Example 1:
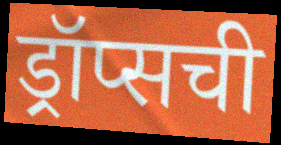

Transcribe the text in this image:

ड्रॉप्सची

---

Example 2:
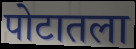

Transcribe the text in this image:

पोटातला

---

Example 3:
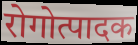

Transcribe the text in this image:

रोगोत्पादक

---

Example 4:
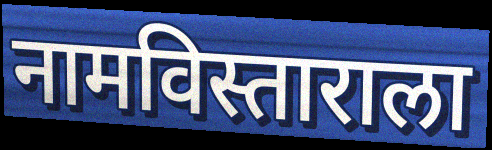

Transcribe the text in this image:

नामविस्ताराला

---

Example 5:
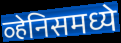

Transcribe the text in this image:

व्हेनिसमध्ये